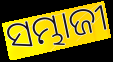
ସମ୍ଭାଜୀ